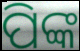
ପିଙ୍କ